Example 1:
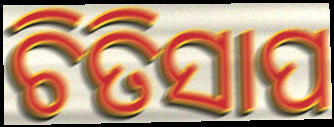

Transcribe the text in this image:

ଚିତିସାପ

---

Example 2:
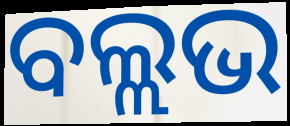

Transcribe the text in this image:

ବଲ୍ଲଭ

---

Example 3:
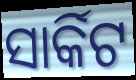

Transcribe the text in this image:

ସାର୍କିଟ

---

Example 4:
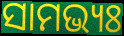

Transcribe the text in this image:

ସାମଭ୍ୟଃ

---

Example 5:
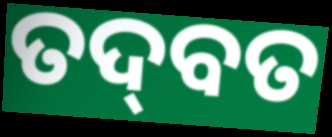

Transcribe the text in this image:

ତଦ୍‍ବତ